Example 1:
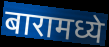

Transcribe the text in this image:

बारामध्ये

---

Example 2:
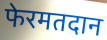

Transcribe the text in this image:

फेरमतदान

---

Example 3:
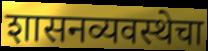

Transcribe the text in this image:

शासनव्यवस्थेचा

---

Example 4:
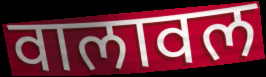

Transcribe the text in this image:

वालावल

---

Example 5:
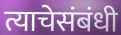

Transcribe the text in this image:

त्याचेसंबंधी